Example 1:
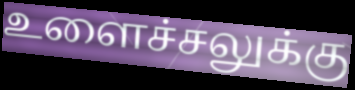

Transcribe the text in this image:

உளைச்சலுக்கு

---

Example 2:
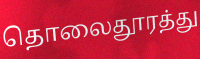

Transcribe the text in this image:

தொலைதூரத்து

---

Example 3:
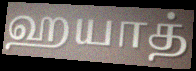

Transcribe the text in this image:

ஹயாத்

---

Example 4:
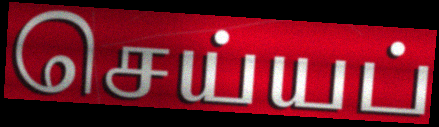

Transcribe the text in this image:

செய்யப்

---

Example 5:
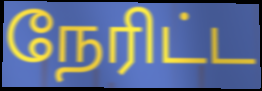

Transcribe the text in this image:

நேரிட்ட